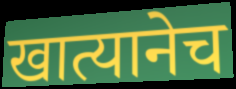
खात्यानेच